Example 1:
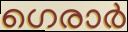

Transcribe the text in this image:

ഗെരാർ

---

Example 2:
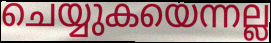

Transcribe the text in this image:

ചെയ്യുകയെന്നല്ല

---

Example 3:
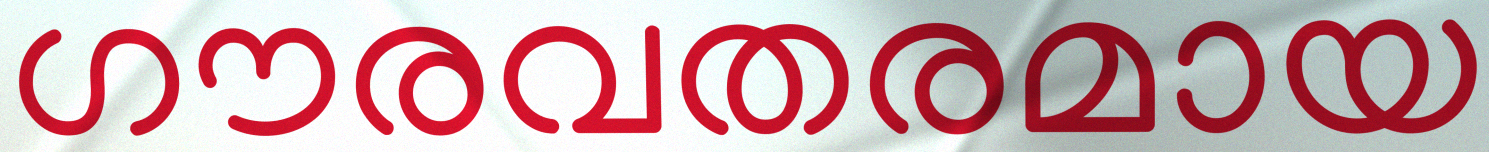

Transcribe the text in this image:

ഗൗരവതരമായ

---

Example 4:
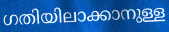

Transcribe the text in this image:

ഗതിയിലാക്കാനുള്ള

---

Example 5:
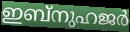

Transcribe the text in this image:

ഇബ്നുഹജർ